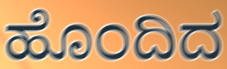
ಹೊಂದಿದ